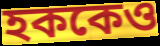
হককেও